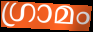
ഗ്രാമം